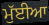
ਮੁੱਈਆ